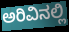
ಅರಿವಿನಲ್ಲಿ